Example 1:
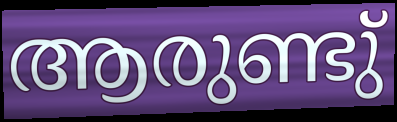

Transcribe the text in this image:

ആരുണ്ടു്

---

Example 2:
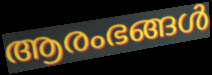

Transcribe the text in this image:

ആരംഭങ്ങൾ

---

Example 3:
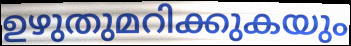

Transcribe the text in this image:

ഉഴുതുമറിക്കുകയും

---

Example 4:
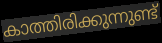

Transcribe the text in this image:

കാത്തിരിക്കുന്നുണ്ട്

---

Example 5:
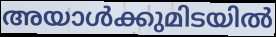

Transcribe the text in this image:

അയാൾക്കുമിടയിൽ